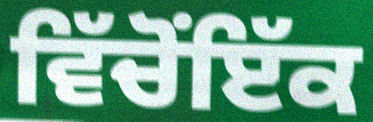
ਵਿੱਚੋਂਇੱਕ